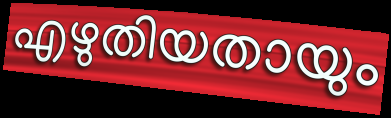
എഴുതിയതായും